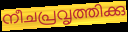
നീചപ്രവൃത്തിക്കു